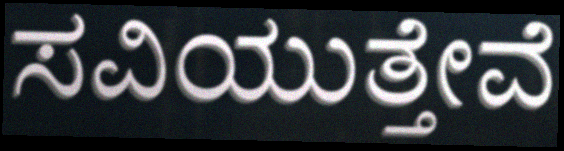
ಸವಿಯುತ್ತೇವೆ